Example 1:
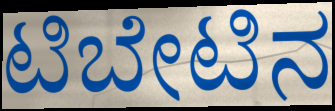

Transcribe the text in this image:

ಟಿಬೇಟಿನ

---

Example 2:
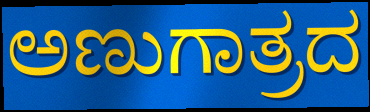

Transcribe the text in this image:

ಅಣುಗಾತ್ರದ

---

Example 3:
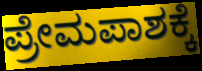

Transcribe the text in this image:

ಪ್ರೇಮಪಾಶಕ್ಕೆ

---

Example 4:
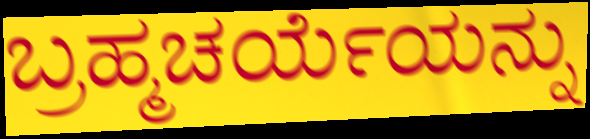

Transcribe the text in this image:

ಬ್ರಹ್ಮಚರ್ಯೆಯನ್ನು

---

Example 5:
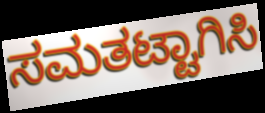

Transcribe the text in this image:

ಸಮತಟ್ಟಾಗಿಸಿ